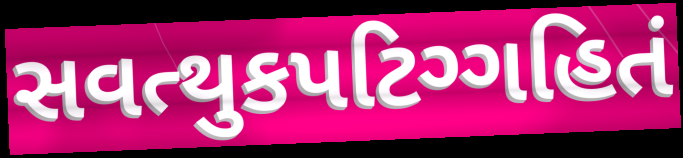
સવત્થુકપટિગ્ગહિતં